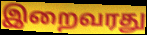
இறைவரது